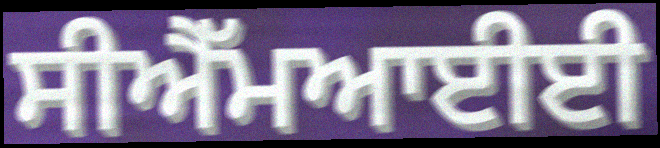
ਸੀਐੱਮਆਈਈ